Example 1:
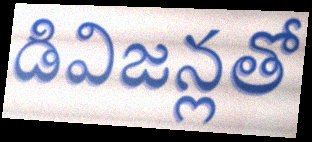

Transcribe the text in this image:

డివిజన్లతో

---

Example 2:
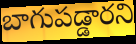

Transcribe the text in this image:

బాగుపడ్డారని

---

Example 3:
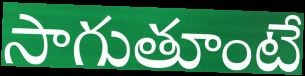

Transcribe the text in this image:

సాగుతూంటే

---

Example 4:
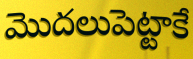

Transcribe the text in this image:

మొదలుపెట్టాకే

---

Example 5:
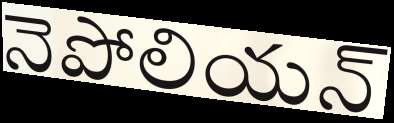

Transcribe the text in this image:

నెపోలియన్